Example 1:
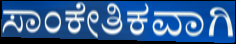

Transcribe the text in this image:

ಸಾಂಕೇತಿಕವಾಗಿ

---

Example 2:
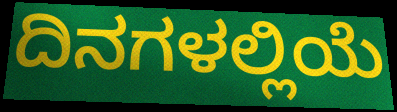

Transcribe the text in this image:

ದಿನಗಳಲ್ಲಿಯೆ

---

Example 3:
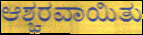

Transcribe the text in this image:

ಆಶ್ಚರವಾಯಿತು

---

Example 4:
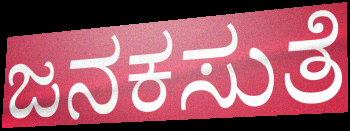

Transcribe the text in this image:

ಜನಕಸುತೆ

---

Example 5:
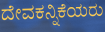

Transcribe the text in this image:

ದೇವಕನ್ನಿಕೆಯರು